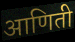
आणिती